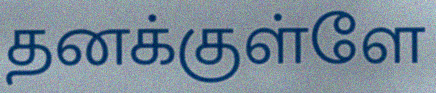
தனக்குள்ளே